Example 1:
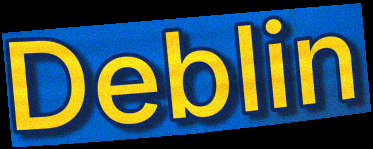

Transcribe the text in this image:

Deblin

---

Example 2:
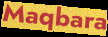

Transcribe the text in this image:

Maqbara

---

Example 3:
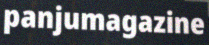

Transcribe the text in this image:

panjumagazine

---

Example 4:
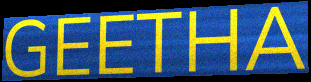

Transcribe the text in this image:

GEETHA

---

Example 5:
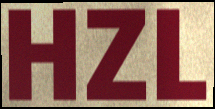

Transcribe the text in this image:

HZL